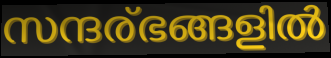
സന്ദര്ഭങ്ങളിൽ